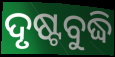
ଦୃଷ୍ଟବୁଦ୍ଧି